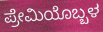
ಪ್ರೇಮಿಯೊಬ್ಬಳ